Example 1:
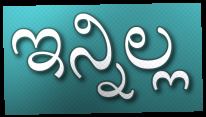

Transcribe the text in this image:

ಇನ್ನಿಲ್ಲ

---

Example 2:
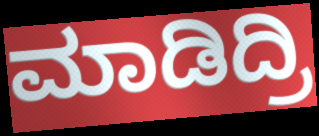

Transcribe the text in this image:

ಮಾಡಿದ್ರಿ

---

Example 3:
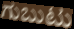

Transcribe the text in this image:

ಗುಬುಟು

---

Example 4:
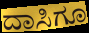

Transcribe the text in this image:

ದಾಸಿಗೂ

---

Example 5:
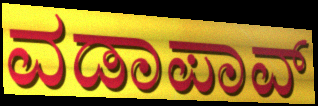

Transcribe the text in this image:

ವಡಾಪಾವ್